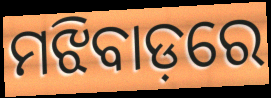
ମଝିବାଡ଼ରେ